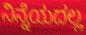
ನಿನ್ನೆಯದಲ್ಲ